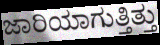
ಜಾರಿಯಾಗುತ್ತಿತ್ತು